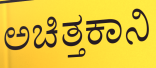
ಅಚಿತ್ತಕಾನಿ